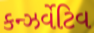
કન્ઝર્વેટિવ